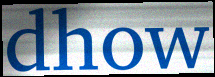
dhow